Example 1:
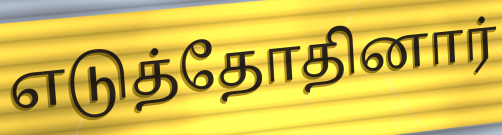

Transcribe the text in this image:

எடுத்தோதினார்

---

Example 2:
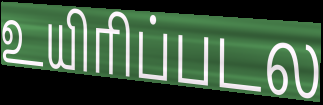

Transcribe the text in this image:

உயிரிப்படல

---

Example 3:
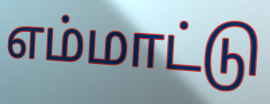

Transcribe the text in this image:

எம்மாட்டு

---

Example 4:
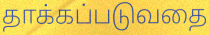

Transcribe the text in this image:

தாக்கப்படுவதை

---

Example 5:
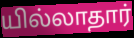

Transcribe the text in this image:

யில்லாதார்